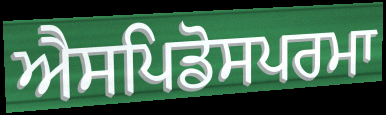
ਐਸਪਿਡੋਸਪਰਮਾ